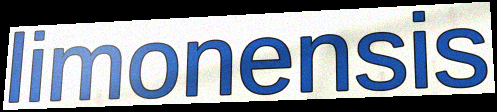
limonensis